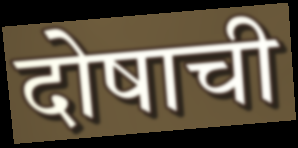
दोषाची